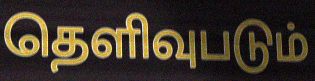
தெளிவுபடும்